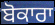
ਬੋਕਾਰਾ